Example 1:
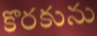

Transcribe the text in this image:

కొరకును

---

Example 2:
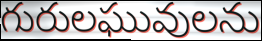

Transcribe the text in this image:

గురులఘువులను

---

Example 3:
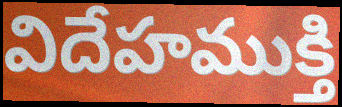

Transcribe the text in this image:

విదేహముక్తి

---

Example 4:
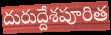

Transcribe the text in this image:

దురుద్దేశపూరిత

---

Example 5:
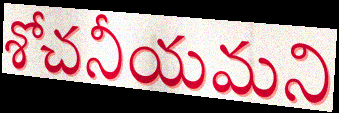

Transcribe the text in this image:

శోచనీయమని